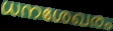
ധനശേഖരം